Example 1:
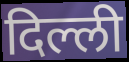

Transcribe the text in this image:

दिल्‍ली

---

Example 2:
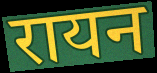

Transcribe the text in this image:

रायन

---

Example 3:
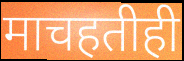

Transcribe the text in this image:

माचहतीही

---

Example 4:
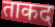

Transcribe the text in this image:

ताकद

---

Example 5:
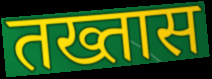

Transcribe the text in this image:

तख्तास